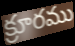
క్రూరము